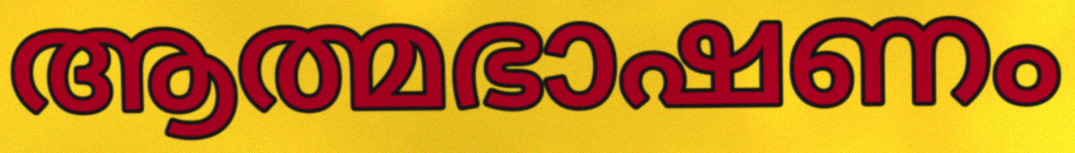
ആത്മഭാഷണം